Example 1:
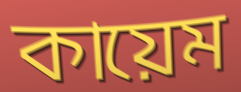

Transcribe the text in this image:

কায়েম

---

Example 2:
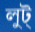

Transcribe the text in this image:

লুট্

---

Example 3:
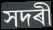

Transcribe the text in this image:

সদৰী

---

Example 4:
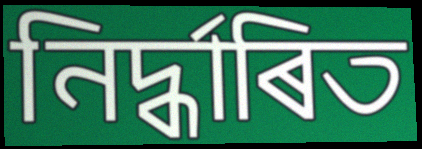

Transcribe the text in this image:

নিৰ্দ্ধাৰিত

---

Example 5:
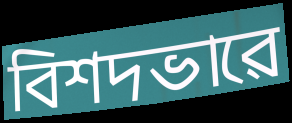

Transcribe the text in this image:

বিশদভাৱে